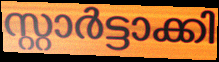
സ്റ്റാർട്ടാക്കി